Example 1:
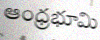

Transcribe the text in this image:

ఆంధ్రభూమి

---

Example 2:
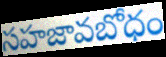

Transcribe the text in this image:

సహజావబోధం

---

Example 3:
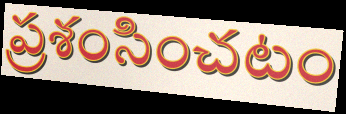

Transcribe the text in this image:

ప్రశంసించటం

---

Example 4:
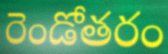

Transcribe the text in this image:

రెండోతరం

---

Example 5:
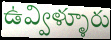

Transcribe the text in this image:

ఉవ్విళ్ళూరు